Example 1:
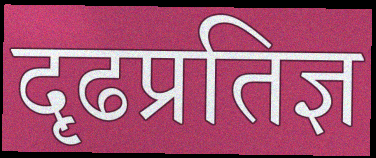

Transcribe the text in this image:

दृढप्रतिज्ञ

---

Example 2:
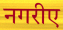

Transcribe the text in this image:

नगरीए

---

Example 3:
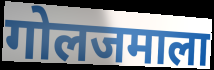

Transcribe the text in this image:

गोलजमाला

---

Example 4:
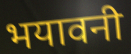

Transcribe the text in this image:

भयावनी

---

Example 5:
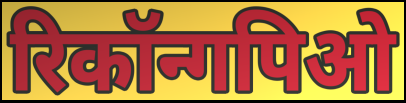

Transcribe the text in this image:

रिकॉन्गपिओ